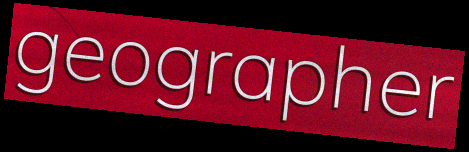
geographer